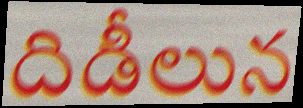
దిడీలున